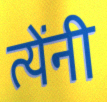
त्येंनी